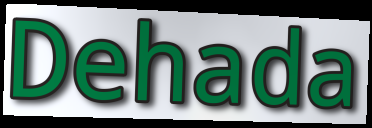
Dehada